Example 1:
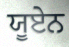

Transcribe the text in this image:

ਯੂਏਨ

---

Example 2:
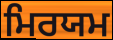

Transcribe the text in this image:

ਮਿਰਯਮ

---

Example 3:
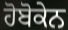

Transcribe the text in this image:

ਹੋਬੋਕੇਨ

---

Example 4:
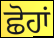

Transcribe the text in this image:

ਛੋਹਾਂ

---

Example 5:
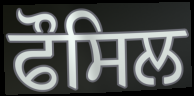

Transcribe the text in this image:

ਫੌਸਿਲ